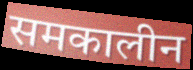
समकालीन